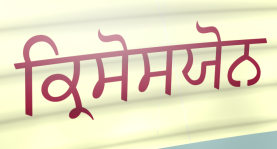
ਕ੍ਰਿਸੋਸਯੋਨ